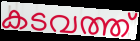
കടവത്ത്